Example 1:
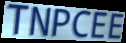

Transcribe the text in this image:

TNPCEE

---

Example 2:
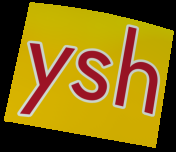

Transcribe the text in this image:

ysh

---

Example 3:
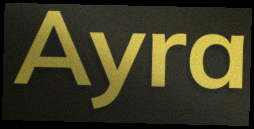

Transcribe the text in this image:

Ayra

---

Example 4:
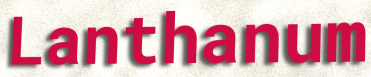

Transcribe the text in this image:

Lanthanum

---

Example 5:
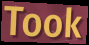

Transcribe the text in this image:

Took